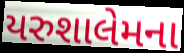
યરુશાલેમના